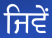
ਜਿਵੇਂ